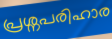
പ്രശ്നപരിഹാര